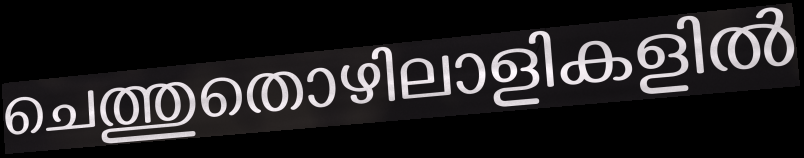
ചെത്തുതൊഴിലാളികളിൽ